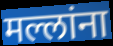
मल्लांना